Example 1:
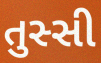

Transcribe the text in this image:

તુસ્સી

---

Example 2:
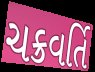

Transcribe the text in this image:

ચક્રવર્તિ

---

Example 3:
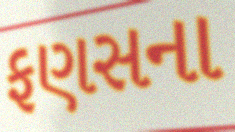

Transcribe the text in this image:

ફણસના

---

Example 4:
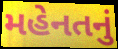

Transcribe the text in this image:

મહેનતનું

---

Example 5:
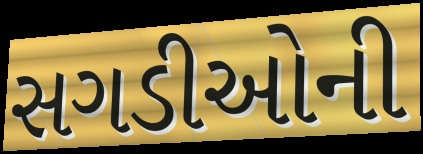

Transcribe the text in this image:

સગડીઓની